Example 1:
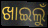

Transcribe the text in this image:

ଖାଇଲୁଁ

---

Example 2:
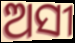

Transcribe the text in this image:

ଅସୀ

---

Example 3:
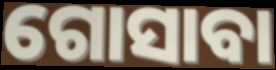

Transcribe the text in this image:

ଗୋସାବା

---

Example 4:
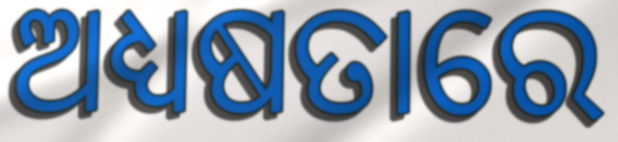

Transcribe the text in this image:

ଅଧ୍ୟଷତାରେ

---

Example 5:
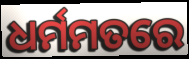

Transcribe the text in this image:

ଧର୍ମମତରେ